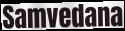
Samvedana